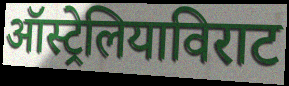
ऑस्ट्रेलियाविराट